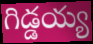
గిడ్డయ్య